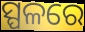
ସ୍ପଳରେ